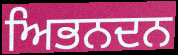
ਅਿਭਨਦਨ